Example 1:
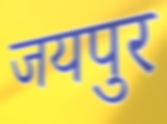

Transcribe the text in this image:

जयपुर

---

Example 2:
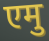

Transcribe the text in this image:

एमु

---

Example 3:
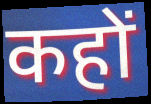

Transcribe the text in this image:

कहों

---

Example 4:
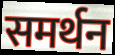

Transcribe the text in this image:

समर्थन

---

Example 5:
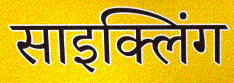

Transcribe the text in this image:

साइक्लिंग